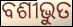
ବଶୀଭୁତ